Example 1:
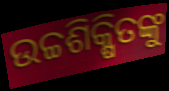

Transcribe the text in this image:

ଉଚ୍ଚଶିକ୍ଷିତଙ୍କୁ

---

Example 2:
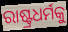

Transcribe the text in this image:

ରାଷ୍ଟ୍ରଧର୍ମକୁ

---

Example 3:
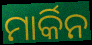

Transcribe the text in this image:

ମାର୍କିନ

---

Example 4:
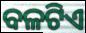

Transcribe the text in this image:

ବଳଟିଏ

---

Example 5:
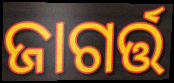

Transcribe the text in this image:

ଜାଗର୍ତ୍ତ